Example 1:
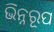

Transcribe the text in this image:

ଭିନ୍ନରୂପ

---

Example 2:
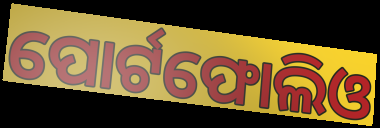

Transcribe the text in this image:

ପୋର୍ଟଫୋଲିଓ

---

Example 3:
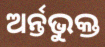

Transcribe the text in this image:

ଅର୍ନ୍ତଭୁକ୍ତ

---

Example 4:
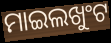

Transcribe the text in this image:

ମାଇଲଖୁଂଟ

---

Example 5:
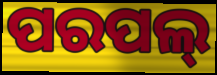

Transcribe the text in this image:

ପରପଲ୍